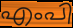
എംപി